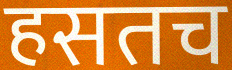
हसतच